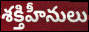
శక్తిహీనులు